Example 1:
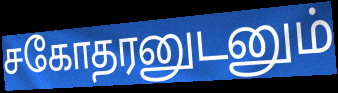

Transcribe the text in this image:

சகோதரனுடனும்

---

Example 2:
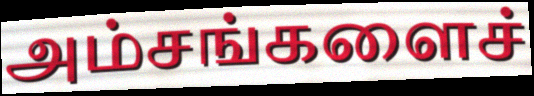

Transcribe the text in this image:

அம்சங்களைச்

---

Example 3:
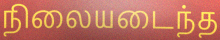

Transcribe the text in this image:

நிலையடைந்த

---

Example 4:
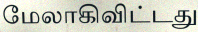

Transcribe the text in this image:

மேலாகிவிட்டது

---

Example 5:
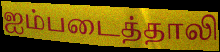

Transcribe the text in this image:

ஐம்படைத்தாலி